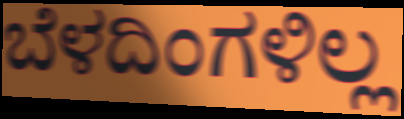
ಬೆಳದಿಂಗಳಿಲ್ಲ